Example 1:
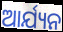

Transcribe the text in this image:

ଆର୍ଯ୍ୟନ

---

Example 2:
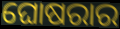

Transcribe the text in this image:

ଘୋଷରାର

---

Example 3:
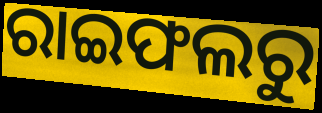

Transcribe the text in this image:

ରାଇଫଲରୁ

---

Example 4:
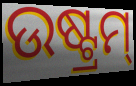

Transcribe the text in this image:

ଉଷ୍ଟ୍ରମ୍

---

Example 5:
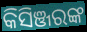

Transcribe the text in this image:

କିସିଞ୍ଜରଙ୍କ